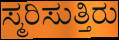
ಸ್ಮರಿಸುತ್ತಿರು